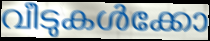
വീടുകൾക്കോ